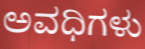
ಅವಧಿಗಳು